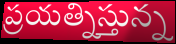
ప్రయత్నిస్తున్న